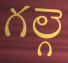
గల్గె